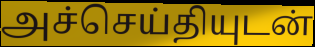
அச்செய்தியுடன்